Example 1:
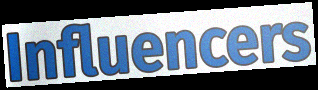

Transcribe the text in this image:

Influencers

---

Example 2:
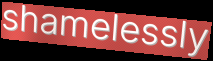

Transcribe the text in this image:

shamelessly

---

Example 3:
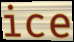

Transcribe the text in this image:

ice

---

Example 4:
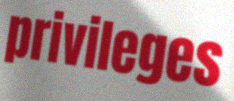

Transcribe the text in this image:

privileges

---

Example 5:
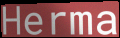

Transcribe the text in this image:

Herma